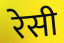
रेसी